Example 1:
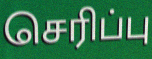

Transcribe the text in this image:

செரிப்பு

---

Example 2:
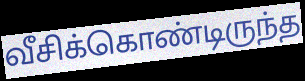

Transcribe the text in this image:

வீசிக்கொண்டிருந்த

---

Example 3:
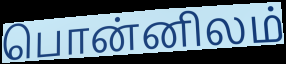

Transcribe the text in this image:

பொன்னிலம்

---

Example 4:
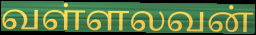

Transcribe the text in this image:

வள்ளலவன்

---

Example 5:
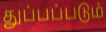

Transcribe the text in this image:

துப்பப்படும்